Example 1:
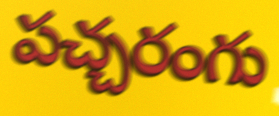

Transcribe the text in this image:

పచ్చరంగు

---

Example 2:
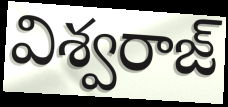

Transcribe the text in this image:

విశ్వరాజ్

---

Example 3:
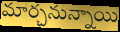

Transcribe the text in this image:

మార్చనున్నాయి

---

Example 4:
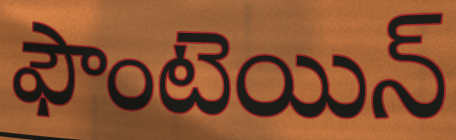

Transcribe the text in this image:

ఫౌంటెయిన్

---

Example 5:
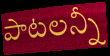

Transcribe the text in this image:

పాటలన్నీ